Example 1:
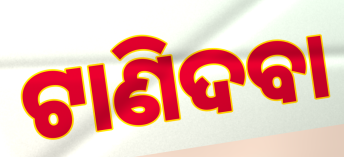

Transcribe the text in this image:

ଟାଣିଦବା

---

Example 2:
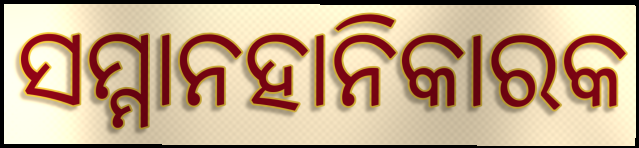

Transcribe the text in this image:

ସମ୍ମାନହାନିକାରକ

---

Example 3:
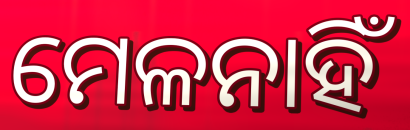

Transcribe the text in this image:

ମେଳନାହିଁ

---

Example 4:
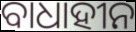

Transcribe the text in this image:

ବାଧାହୀନ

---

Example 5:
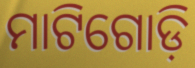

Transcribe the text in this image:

ମାଟିଗୋଡ଼ି